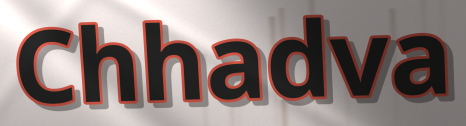
Chhadva